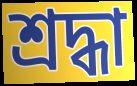
শ্রদ্ধা